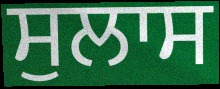
ਸੁਲਾਸ